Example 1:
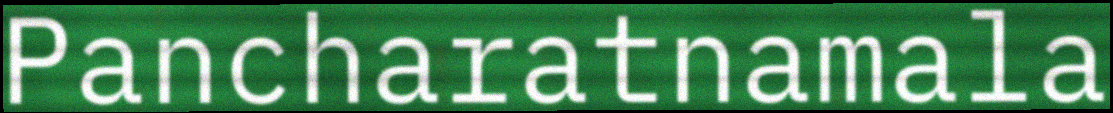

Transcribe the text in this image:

Pancharatnamala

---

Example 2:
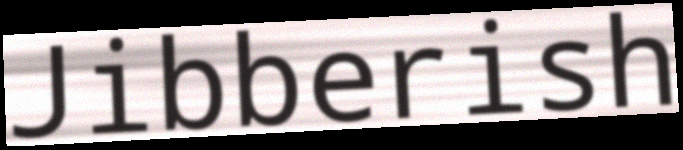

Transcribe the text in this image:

Jibberish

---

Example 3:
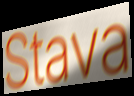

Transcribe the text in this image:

Stava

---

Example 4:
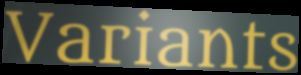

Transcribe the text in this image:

Variants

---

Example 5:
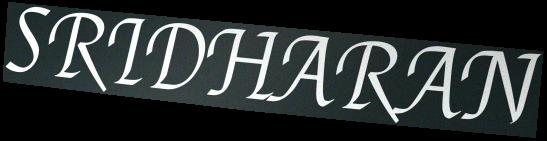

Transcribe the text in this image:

SRIDHARAN